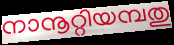
നാനൂറ്റിയമ്പതു